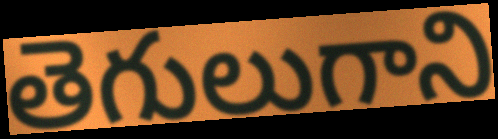
తెగులుగాని